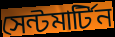
সেন্টমার্টিন